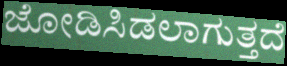
ಜೋಡಿಸಿಡಲಾಗುತ್ತದೆ